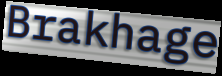
Brakhage